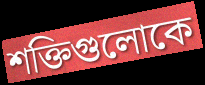
শক্তিগুলোকে